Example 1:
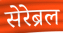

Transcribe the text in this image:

सेरेब्रल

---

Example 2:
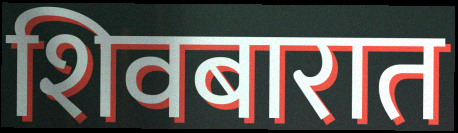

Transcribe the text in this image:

शिवबारात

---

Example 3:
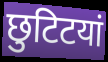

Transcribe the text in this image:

छुटिटयां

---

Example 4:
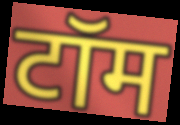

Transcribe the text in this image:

टॉम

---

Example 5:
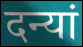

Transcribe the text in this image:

दन्यां